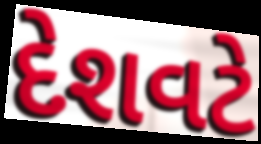
દેશવટે